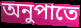
অনুপাতে